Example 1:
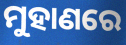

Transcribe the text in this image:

ମୁହାଣରେ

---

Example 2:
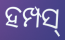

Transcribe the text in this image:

ହମ୍ପସ୍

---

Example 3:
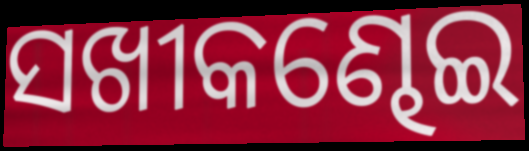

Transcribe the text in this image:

ସଖୀକଣ୍ଢେଇ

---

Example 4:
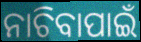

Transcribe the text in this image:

ନାଚିବାପାଇଁ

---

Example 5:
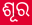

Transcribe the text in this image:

ଶୂର